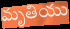
మృతియు